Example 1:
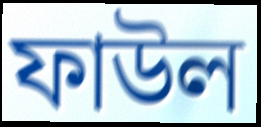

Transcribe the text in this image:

ফাউল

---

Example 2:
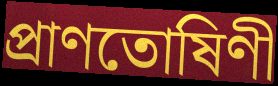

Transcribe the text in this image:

প্ৰাণতোষিণী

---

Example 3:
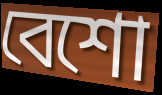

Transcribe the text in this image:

বেশো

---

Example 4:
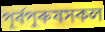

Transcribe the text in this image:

পূৰ্বপুৰুষসকল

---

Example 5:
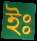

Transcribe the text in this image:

ইঃ